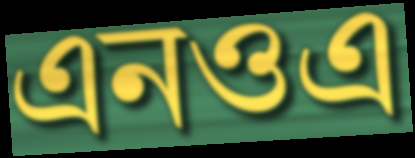
এনওএ